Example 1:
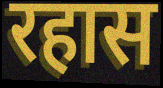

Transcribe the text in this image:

रहास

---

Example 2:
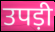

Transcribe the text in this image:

उपड़ी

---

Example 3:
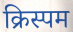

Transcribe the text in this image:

क्रिस्पम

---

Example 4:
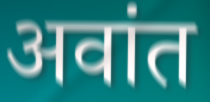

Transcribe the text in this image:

अवांत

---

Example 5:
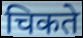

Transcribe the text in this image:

चिकते